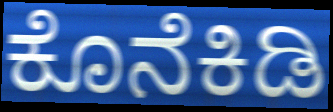
ಕೊನೆಕಿಡಿ